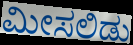
ಮೀಸಲಿಡು